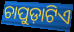
ଚାପୁଡ଼ାଟିଏ